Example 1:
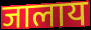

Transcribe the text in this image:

जालाय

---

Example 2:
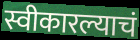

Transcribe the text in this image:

स्वीकारल्याचं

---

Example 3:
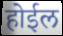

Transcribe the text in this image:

होईल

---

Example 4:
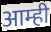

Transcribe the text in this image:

आम्ही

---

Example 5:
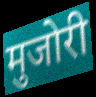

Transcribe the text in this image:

मुजोरी